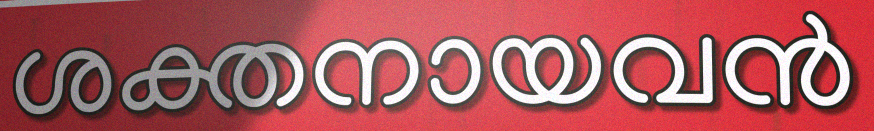
ശക്തനായവൻ